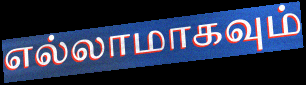
எல்லாமாகவும்